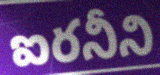
ఐరనీని